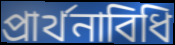
প্রার্থনাবিধি